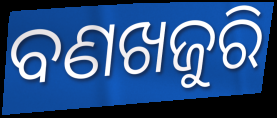
ବଣଖଜୁରି